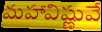
మహావిష్ణువే